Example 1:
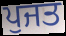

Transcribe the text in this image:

ਪੁਜਤ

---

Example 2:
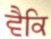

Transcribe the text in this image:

ਵੈਕਿ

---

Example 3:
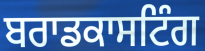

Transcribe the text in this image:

ਬਰਾਡਕਾਸਟਿੰਗ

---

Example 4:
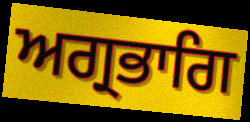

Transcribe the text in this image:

ਅਗ੍ਰਭਾਗਿ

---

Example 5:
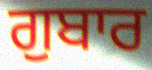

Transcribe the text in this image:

ਗੁਬਾਰ